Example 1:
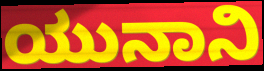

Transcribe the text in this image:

ಯುನಾನಿ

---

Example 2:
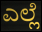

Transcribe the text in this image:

ಎಲ್ಲೆ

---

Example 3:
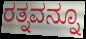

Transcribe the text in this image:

ರತ್ನವನ್ನೂ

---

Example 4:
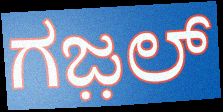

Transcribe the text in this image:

ಗಜ಼ಲ್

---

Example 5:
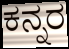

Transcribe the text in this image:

ಕನ್ನರ